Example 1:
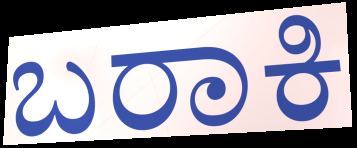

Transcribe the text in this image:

ಬರಾಕಿ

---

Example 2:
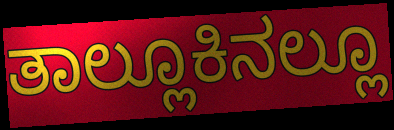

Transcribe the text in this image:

ತಾಲ್ಲೂಕಿನಲ್ಲೂ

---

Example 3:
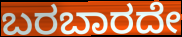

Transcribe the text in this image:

ಬರಬಾರದೇ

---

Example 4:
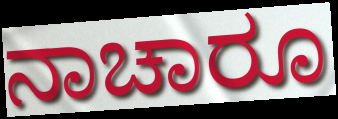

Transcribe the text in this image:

ನಾಚಾರೂ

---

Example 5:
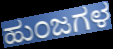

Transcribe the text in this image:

ಹುಂಜಗಳ